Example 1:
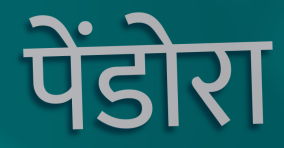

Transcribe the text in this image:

पेंडोरा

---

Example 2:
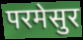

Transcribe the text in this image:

परमेसुर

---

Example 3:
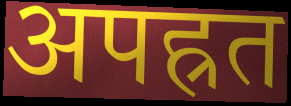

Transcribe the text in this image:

अपह्रत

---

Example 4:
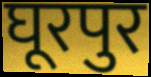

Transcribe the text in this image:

घूरपुर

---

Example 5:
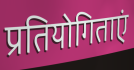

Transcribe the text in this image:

प्रतियोगिताएं